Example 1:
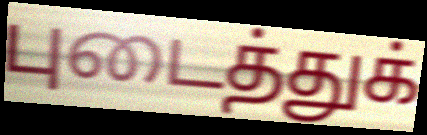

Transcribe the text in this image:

புடைத்துக்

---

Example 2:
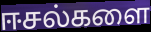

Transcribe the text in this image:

ஈசல்களை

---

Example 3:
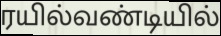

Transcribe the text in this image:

ரயில்வண்டியில்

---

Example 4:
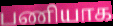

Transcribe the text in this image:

பணியாக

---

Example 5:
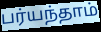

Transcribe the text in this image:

பர்யந்தாம்